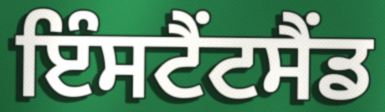
ਇੰਸਟੈਂਟਸੈਂਡ